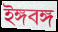
ইঙ্গবঙ্গ